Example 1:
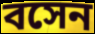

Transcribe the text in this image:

বসেন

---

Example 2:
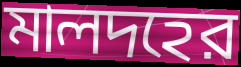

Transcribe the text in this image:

মালদহের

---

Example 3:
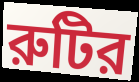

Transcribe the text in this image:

রুটির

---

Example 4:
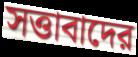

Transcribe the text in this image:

সত্তাবাদের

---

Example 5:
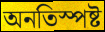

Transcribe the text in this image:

অনতিস্পষ্ট